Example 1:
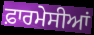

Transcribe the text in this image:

ਫ਼ਾਰਮੇਸੀਆਂ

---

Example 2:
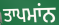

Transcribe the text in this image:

ਤਾਪਮਾਂਨ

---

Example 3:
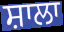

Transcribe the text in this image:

ਸ਼ਾਲਾ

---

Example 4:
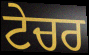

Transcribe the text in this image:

ਟੇਚਰ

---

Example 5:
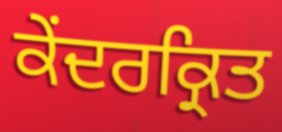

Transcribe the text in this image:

ਕੇਂਦਰਕ੍ਰਿਤ